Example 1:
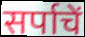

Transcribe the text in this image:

सर्पाचें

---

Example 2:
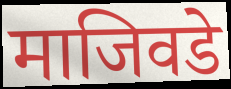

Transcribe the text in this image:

माजिवडे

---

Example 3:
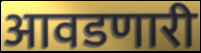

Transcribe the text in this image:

आवडणारी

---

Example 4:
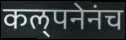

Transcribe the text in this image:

कल्पनेनंच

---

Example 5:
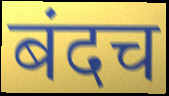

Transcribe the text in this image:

बंदच